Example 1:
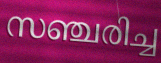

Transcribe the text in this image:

സഞ്ചരിച്ച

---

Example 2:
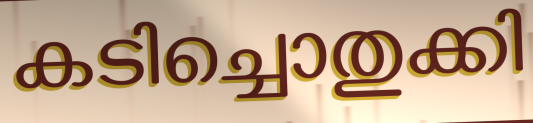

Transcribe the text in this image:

കടിച്ചൊതുക്കി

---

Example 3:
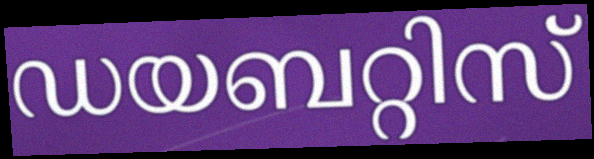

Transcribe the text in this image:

ഡയബറ്റിസ്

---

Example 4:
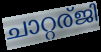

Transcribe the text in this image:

ചാറ്റര്ജി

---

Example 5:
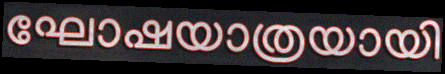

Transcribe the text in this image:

ഘോഷയാത്രയായി